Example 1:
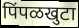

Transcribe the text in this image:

पिंपळखुटा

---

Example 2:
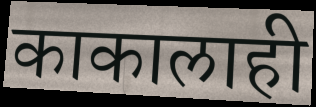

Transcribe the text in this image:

काकालाही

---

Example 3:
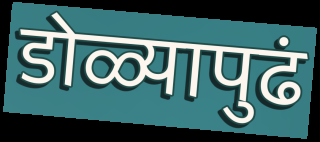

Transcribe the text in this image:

डोळ्यापुढं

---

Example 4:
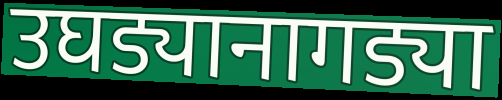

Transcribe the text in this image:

उघड्यानागड्या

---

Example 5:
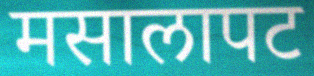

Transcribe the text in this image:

मसालापट